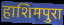
हाशिमपुरा